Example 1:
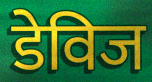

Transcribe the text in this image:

डेविज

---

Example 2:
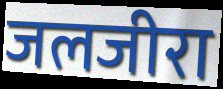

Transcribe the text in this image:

जलजीरा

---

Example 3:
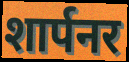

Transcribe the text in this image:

शार्पनर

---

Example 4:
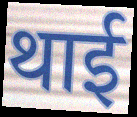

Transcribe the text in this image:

थाई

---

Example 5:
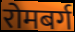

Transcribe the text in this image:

रोमबर्ग